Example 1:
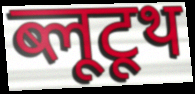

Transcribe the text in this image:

ब्लूटूथ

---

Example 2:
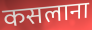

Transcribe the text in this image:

कसलाना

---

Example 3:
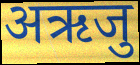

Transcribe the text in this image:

अऋजु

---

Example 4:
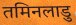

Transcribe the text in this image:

तमिनलाडु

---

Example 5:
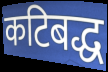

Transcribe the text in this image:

कटिबद्ध